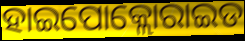
ହାଇପୋକ୍ଲୋରାଇଡ